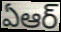
ఏఆర్